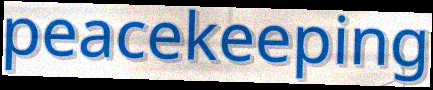
peacekeeping